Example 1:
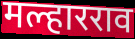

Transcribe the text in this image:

मल्हारराव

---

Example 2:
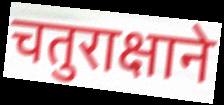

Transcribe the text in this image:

चतुराक्षाने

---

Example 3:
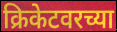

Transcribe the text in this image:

क्रिकेटवरच्या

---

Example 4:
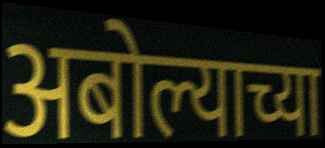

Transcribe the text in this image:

अबोल्याच्या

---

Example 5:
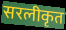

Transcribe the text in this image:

सरलीकृत